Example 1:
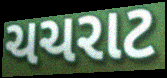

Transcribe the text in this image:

ચચરાટ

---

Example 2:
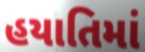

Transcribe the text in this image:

હયાતિમાં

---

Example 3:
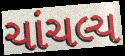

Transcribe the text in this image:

ચાંચલ્ય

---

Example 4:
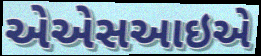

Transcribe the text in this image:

એએસઆઇએ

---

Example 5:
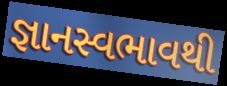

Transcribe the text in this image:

જ્ઞાનસ્વભાવથી